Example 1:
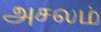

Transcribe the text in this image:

அசலம்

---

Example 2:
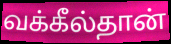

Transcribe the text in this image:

வக்கீல்தான்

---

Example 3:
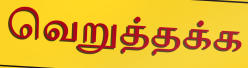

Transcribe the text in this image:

வெறுத்தக்க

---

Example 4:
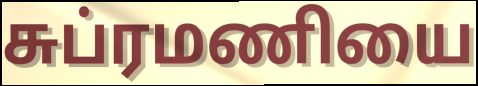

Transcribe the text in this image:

சுப்ரமணியை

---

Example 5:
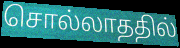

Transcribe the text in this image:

சொல்லாததில்